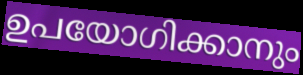
ഉപയോഗിക്കാനും